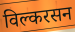
विल्करसन